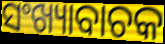
ସଂଖ୍ୟାବାଚକ